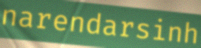
narendarsinh